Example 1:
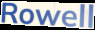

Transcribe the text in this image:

Rowell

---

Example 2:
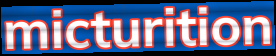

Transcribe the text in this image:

micturition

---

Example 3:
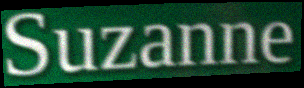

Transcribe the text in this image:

Suzanne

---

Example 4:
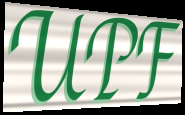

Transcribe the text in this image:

UPF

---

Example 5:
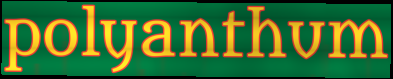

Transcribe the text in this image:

polyanthum